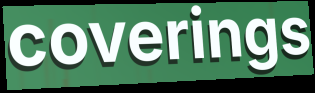
coverings